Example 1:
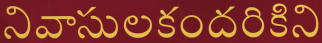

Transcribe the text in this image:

నివాసులకందరికిని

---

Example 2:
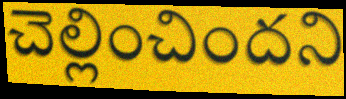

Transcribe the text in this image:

చెల్లించిందని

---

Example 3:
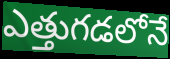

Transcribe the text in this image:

ఎత్తుగడలోనే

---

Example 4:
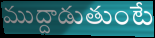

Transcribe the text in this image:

ముద్దాడుతుంటే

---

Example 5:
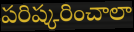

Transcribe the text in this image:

పరిష్కరించాలా